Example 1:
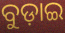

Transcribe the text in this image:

ବୁଡ଼ାଇ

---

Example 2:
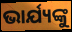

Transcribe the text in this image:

ଭାର୍ଯ୍ୟଙ୍କୁ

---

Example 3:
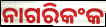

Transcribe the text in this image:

ନାଗରିକଂକ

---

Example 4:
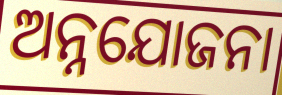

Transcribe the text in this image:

ଅନ୍ନଯୋଜନା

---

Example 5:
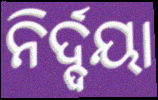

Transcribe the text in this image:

ନିର୍ଦ୍ଦୟା